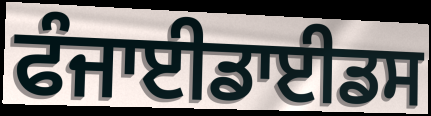
ਫੰਜਾਈਡਾਈਡਸ